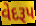
વેદરૂપ